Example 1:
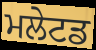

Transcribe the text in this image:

ਮਲੇਟਡ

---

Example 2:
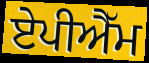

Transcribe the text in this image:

ਏਪੀਐੱਮ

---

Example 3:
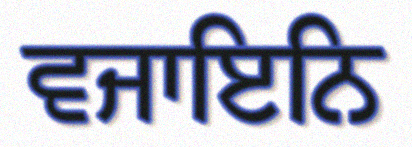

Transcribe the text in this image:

ਵਜਾਇਨਿ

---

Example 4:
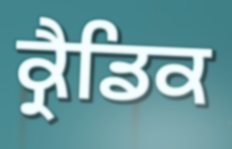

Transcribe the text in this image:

ਕ੍ਰੈਡਿਕ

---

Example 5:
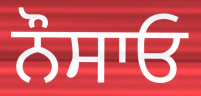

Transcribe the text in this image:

ਨੌਸਾਓ